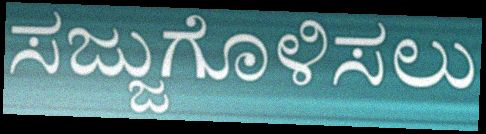
ಸಜ್ಜುಗೊಳಿಸಲು